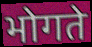
भोगते